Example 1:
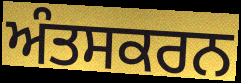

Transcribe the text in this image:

ਅੰਤਸਕਰਨ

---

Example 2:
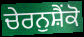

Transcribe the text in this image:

ਚੇਰਨੁਸ਼ੈਂਕੋ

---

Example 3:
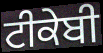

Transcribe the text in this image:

ਟੀਕੇਬੀ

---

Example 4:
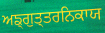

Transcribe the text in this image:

ਅਙ੍ਗੁਤ੍ਤਰਨਿਕਾਯ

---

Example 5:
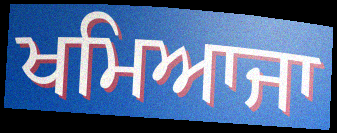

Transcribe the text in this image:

ਖਮਿਆਜਾ